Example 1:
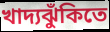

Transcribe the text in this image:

খাদ্যঝুঁকিতে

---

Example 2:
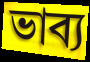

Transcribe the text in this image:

ভাব্য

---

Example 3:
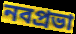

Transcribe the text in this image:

নবপ্রভা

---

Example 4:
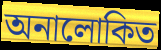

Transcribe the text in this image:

অনালোকিত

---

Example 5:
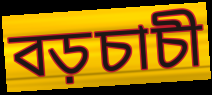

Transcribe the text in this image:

বড়চাচী